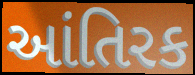
આંતિરક